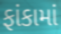
ફાંકામાં